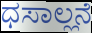
ಧಸಾಲ್ಲನೆ